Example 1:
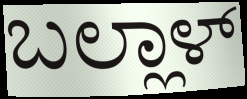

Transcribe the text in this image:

ಬಲ್ಲಾಳ್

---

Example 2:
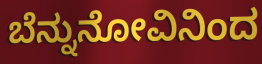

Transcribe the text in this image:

ಬೆನ್ನುನೋವಿನಿಂದ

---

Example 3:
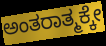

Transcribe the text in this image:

ಅಂತರಾತ್ಮಕ್ಕೇ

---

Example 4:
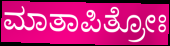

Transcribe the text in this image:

ಮಾತಾಪಿತ್ರೋಃ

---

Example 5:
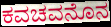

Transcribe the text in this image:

ಕವಚವನೊನ